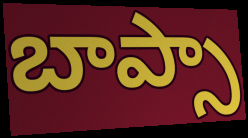
బాప్సా